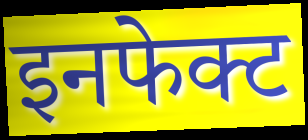
इनफेक्ट